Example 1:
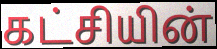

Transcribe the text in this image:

கட்சியின்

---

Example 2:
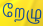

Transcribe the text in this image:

றேழு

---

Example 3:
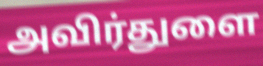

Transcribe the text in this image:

அவிர்துளை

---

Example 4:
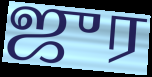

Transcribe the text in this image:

ஜுர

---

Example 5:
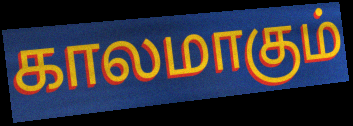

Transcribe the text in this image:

காலமாகும்